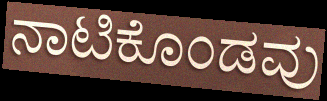
ನಾಟಿಕೊಂಡವು